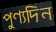
পুণ্যদিন